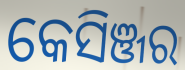
କେସିଞ୍ଜର